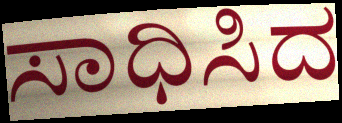
ಸಾಧಿಸಿದ